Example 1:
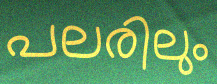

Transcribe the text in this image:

പലരിലും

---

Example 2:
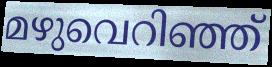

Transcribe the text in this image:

മഴുവെറിഞ്ഞ്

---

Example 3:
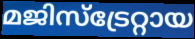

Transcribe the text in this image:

മജിസ്ട്രേറ്റായ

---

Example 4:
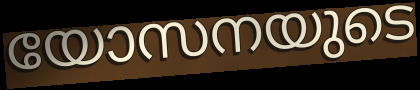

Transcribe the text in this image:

യോസനയുടെ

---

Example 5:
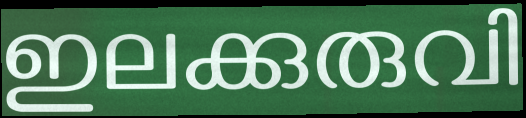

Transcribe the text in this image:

ഇലക്കുരുവി